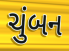
ચુંબન